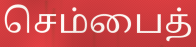
செம்பைத்